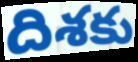
దిశకు